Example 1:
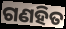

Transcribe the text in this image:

ଗଣହିତ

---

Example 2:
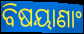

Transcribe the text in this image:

ବିଷୟାଣାଂ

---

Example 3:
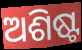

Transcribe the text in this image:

ଅଶିଷ୍ଟ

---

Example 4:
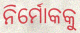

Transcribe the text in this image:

ନିର୍ମୋକକୁ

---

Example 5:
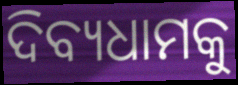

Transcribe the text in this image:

ଦିବ୍ୟଧାମକୁ